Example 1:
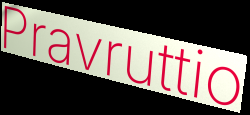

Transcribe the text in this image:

Pravruttio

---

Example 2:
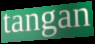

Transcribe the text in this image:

tangan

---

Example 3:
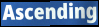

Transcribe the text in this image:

Ascending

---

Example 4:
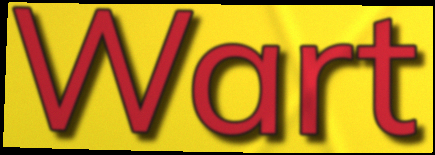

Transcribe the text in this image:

Wart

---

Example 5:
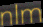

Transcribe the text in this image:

nlm